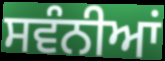
ਸਵੰਨੀਆਂ